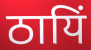
ठायिं